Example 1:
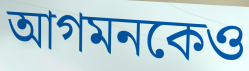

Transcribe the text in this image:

আগমনকেও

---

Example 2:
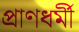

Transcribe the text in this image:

প্রাণধর্মী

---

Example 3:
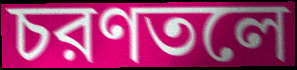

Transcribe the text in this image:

চরণতলে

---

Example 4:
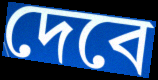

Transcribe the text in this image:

দেবে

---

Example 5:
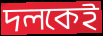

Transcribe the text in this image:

দলকেই